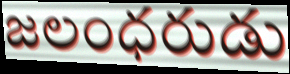
జలంధరుడు